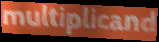
multiplicand